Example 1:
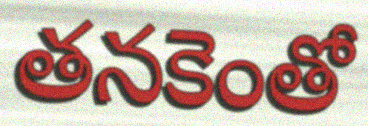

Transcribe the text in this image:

తనకెంతో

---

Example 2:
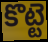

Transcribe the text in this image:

కొట్టె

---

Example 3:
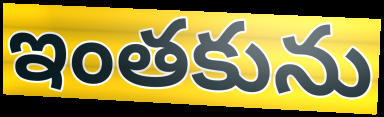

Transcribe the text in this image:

ఇంతకును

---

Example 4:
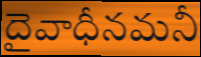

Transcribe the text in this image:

దైవాధీనమనీ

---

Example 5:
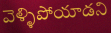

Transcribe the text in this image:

వెళ్ళిపోయాడని